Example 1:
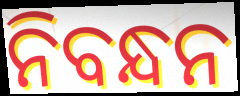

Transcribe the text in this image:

ନିବନ୍ଧନ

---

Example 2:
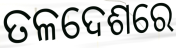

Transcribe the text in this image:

ତଳଦେଶରେ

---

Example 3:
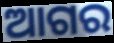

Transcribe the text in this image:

ଆଗର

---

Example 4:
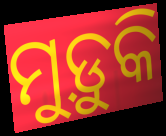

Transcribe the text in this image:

ମୁଡ଼ୁକି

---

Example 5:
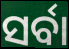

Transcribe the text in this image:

ସର୍ବା